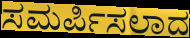
ಸಮರ್ಪಿಸಲಾದ